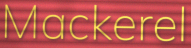
Mackerel